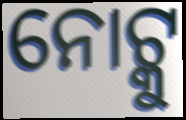
ନୋଟ୍କୁ